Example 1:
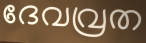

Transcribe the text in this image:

ദേവവ്രത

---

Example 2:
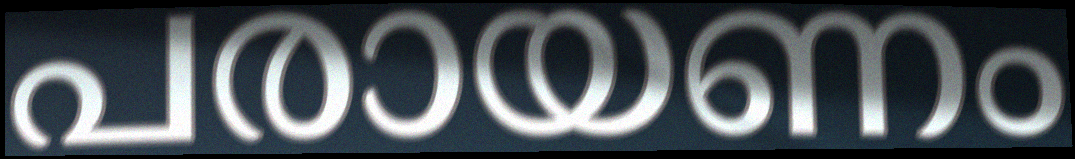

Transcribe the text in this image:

പരായണം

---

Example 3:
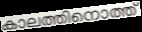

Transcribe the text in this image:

കാലത്തിനൊത്ത്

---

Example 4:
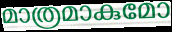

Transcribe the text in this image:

മാത്രമാകുമോ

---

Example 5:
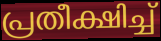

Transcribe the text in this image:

പ്രതീക്ഷിച്ച്